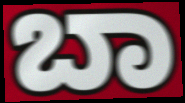
ಬಾ